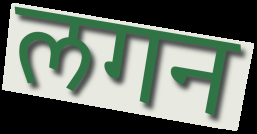
लगन